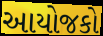
આયોજકો